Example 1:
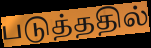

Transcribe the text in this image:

படுத்ததில்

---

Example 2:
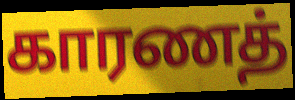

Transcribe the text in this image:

காரணத்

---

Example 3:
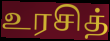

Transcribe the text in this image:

உரசித்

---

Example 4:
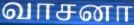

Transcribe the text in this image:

வாசனா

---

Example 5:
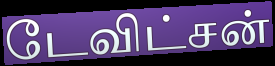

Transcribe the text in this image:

டேவிட்சன்